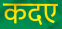
कदए